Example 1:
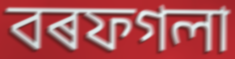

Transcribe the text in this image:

বৰফগলা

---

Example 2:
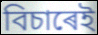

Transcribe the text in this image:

বিচাৰেই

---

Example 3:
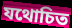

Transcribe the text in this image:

যথোচিত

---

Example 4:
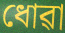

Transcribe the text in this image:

ধোৱা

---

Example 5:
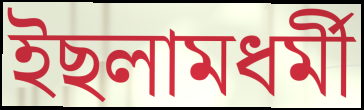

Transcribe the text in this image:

ইছলামধৰ্মী